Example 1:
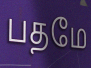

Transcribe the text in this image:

பதமே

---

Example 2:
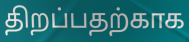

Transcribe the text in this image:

திறப்பதற்காக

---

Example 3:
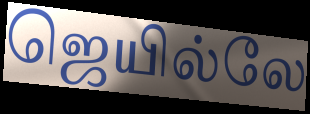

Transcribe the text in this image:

ஜெயில்லே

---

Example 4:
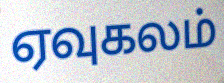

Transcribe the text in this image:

ஏவுகலம்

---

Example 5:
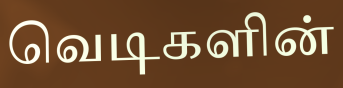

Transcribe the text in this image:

வெடிகளின்